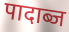
पादाब्ज